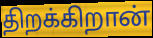
திறக்கிறான்